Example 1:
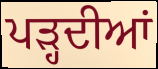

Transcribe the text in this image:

ਪੜ੍ਹਦੀਆਂ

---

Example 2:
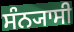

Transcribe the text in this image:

ਸੰਨ੍ਯਾਸੀ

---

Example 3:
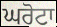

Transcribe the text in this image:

ਘਰੋਟਾ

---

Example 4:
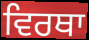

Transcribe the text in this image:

ਵਿਰਥਾ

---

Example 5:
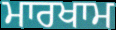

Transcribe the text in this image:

ਮਾਰਖਾਮ